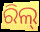
ରିଲ୍